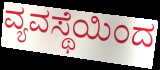
ವ್ಯವಸ್ಥೆಯಿಂದ